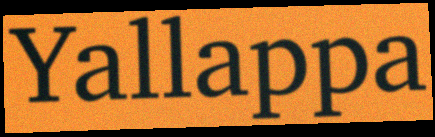
Yallappa